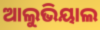
ଆଲୁଭିୟାଲ